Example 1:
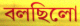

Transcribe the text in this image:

বলছিলো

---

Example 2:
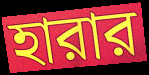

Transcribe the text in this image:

হারার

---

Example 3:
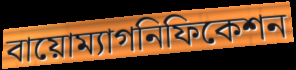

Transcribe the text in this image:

বায়োম্যাগনিফিকেশন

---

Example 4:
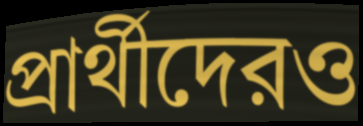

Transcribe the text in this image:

প্রার্থীদেরও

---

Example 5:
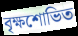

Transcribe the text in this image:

বৃক্ষশোভিত